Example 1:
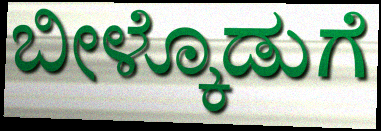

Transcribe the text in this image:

ಬೀಳ್ಕೊಡುಗೆ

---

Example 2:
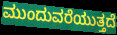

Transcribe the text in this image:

ಮುಂದುವರೆಯುತ್ತದೆ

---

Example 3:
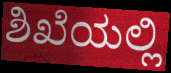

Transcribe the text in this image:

ಶಿಖೆಯಲ್ಲಿ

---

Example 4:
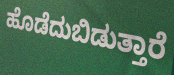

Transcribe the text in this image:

ಹೊಡೆದುಬಿಡುತ್ತಾರೆ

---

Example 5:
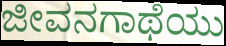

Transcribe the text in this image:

ಜೀವನಗಾಥೆಯು